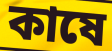
কাষে